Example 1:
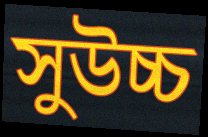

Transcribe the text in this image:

সুউচ্চ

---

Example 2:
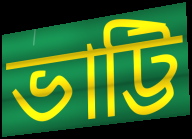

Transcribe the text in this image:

ভাট্টি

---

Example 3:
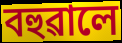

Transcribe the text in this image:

বহুৱালে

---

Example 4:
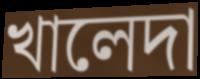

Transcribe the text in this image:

খালেদা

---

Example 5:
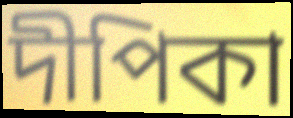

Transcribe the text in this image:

দীপিকা